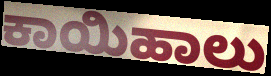
ಕಾಯಿಹಾಲು